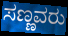
ಸಣ್ಣವರು